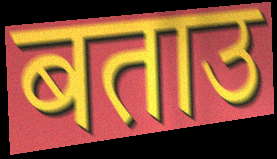
बताउ